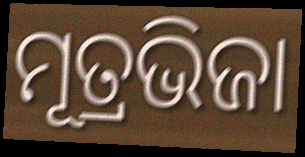
ମୂତ୍ରଭିଜା